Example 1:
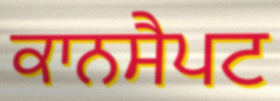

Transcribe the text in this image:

ਕਾਨਸੈਪਟ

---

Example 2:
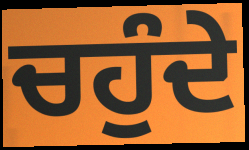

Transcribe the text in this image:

ਚਹੁੰਦੇ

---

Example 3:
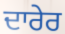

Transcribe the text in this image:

ਦਾਰੇਰ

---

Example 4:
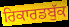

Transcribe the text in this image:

ਰਿਕਾਰਡਬੁੱਕ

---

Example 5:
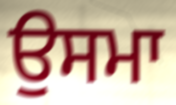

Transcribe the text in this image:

ਉਸਮਾ